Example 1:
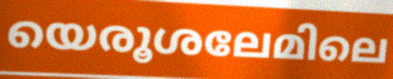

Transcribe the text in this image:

യെരൂശലേമിലെ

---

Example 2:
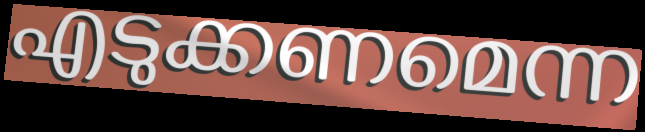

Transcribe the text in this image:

എടുക്കണമെന്ന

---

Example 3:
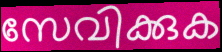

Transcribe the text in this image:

സേവിക്കുക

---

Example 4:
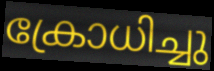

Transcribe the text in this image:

ക്രോധിച്ചു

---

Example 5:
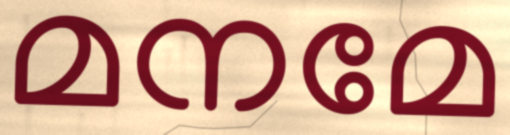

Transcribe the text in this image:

മനമേ